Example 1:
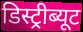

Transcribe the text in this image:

डिस्ट्रीब्यूट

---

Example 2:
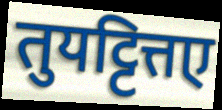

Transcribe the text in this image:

तुयट्टित्तए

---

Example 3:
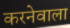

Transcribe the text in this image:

करनेवाला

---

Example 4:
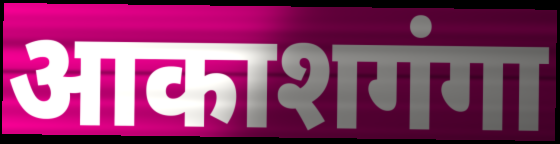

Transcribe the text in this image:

आकाशगंगा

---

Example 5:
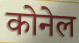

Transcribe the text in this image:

कोनेल